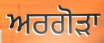
ਅਰਗੋੜਾ